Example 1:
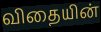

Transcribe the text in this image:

விதையின்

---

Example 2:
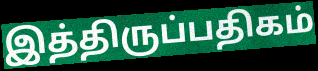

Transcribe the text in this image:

இத்திருப்பதிகம்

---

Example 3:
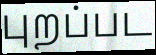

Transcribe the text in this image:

புறப்பட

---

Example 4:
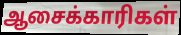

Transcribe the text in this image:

ஆசைக்காரிகள்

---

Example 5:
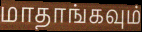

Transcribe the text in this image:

மாதாங்கவும்